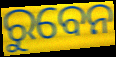
ରୁବେନ